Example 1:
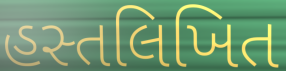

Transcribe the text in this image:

હસ્તલિખિત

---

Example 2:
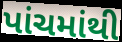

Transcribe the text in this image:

પાંચમાંથી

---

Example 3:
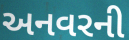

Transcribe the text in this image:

અનવરની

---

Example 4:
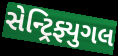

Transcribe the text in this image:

સેન્ટ્રિફ્યુગલ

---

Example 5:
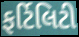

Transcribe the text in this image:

ફર્ટિલિટી